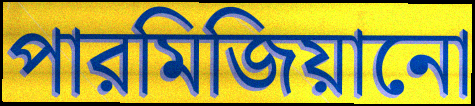
পারমিজিয়ানো